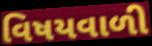
વિષયવાળી